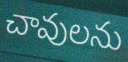
చావులను